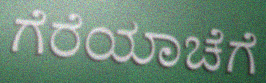
ಗೆರೆಯಾಚೆಗೆ